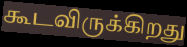
கூடவிருக்கிறது